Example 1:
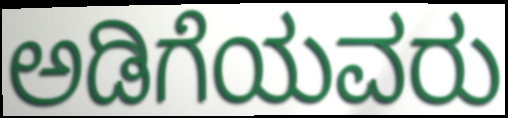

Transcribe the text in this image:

ಅಡಿಗೆಯವರು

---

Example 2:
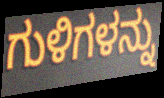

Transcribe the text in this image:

ಗುಳಿಗಳನ್ನು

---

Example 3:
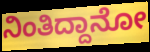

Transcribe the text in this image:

ನಿಂತಿದ್ದಾನೋ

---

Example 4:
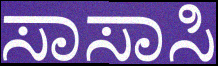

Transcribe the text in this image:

ಸಾಸಾಸಿ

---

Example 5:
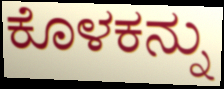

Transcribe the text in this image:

ಕೊಳಕನ್ನು